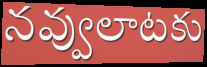
నవ్వులాటకు